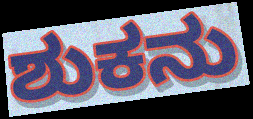
ಶುಕನು